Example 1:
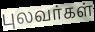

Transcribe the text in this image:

புலவர்கள்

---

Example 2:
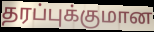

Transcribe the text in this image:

தரப்புக்குமான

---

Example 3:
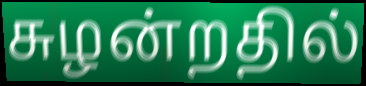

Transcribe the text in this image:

சுழன்றதில்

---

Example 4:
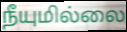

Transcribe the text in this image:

நீயுமில்லை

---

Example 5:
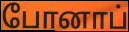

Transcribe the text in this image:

போனாப்